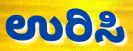
ಉರಿಸಿ